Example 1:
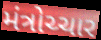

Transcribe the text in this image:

મંત્રોચ્ચાર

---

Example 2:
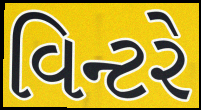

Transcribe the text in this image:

વિન્ટરે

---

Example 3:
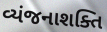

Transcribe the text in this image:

વ્યંજનાશક્તિ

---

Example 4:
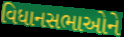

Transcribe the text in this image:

વિધાનસભાઓને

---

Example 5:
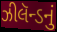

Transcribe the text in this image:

ઝીલૅન્ડનું